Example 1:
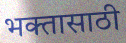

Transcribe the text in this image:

भक्तासाठी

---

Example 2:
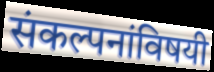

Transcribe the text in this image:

संकल्पनांविषयी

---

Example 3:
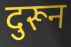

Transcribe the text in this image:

दुरून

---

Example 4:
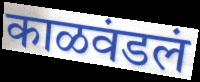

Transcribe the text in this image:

काळवंडलं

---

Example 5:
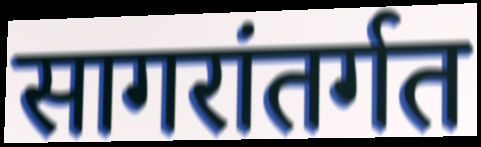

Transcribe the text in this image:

सागरांतर्गत